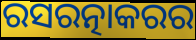
ରସରତ୍ନାକରର